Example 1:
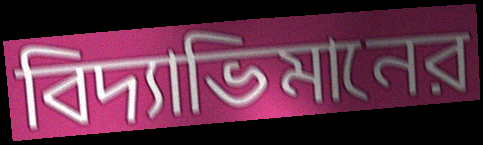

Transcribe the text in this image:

বিদ্যাভিমানের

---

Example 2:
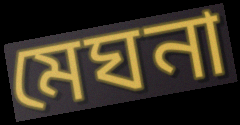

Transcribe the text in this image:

মেঘনা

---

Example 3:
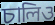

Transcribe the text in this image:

চালিও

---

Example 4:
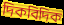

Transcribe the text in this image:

দিকবিদিক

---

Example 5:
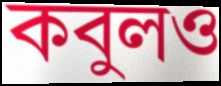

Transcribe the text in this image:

কবুলও